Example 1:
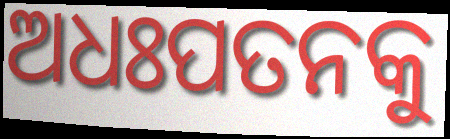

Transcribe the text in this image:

ଅଧଃପତନକୁ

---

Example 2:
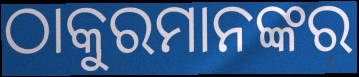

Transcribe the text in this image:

ଠାକୁରମାନଙ୍କର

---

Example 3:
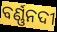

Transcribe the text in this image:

ବର୍ଣ୍ଣନଦୀ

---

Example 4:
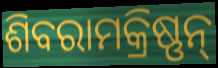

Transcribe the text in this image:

ଶିବରାମକ୍ରିଷ୍ଣନ୍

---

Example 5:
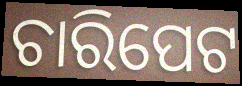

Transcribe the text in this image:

ଚାରିପେଟ